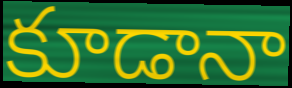
కూడానా